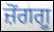
ਜ਼ੋਂਗਗੂ